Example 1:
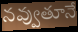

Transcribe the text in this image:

నవ్వుతూనే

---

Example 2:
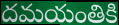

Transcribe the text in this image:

దమయంతికి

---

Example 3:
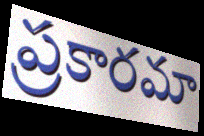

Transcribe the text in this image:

ప్రకారమా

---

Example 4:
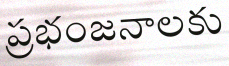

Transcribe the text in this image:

ప్రభంజనాలకు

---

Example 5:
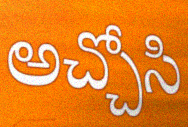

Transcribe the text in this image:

అచ్చోసి